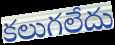
కలుగలేదు